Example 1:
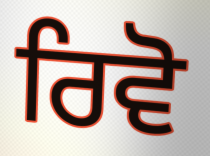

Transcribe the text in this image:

ਰਿਵੋ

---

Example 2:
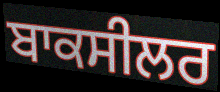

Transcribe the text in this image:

ਬਾਕਸੀਲਰ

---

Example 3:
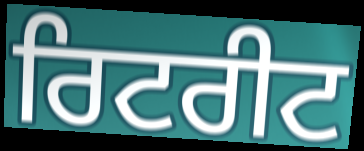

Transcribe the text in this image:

ਰਿਟਰੀਟ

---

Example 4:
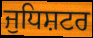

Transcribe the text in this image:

ਜੁਧਿਸ਼ਟਰ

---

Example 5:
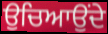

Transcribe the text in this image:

ਉਚਿਆਉਂਦੇ